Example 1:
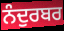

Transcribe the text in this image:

ਨੰਦੁਰਬਰ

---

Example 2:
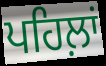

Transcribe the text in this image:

ਪਹਿਲ਼ਾਂ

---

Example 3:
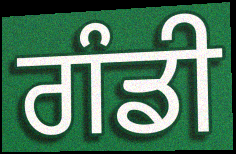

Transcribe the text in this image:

ਗੰਡੀ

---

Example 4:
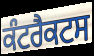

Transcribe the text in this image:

ਕੰਟਰੈਕਟਸ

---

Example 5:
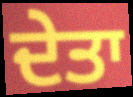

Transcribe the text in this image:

ਦੇਤਾ